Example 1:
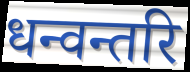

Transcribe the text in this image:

धन्वन्तरि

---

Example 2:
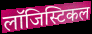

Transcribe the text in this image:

लॉजिस्टिकल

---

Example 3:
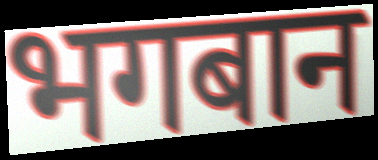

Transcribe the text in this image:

भगबान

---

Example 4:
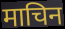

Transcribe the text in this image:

माचिन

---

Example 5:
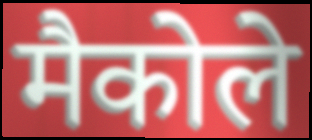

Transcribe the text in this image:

मैकोले